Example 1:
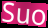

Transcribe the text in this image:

Suo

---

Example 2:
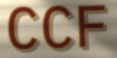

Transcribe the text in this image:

CCF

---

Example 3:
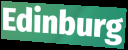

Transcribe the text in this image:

Edinburg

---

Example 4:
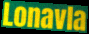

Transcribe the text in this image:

Lonavla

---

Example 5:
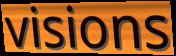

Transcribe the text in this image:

visions